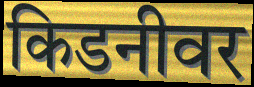
किडनीवर